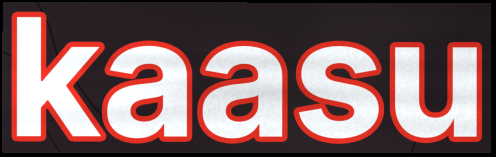
kaasu